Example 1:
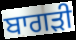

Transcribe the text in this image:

ਬਾਗੜੀ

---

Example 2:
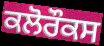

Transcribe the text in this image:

ਕਲੋਰੌਕਸ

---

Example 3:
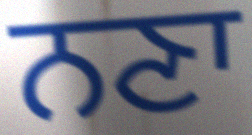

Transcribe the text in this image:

ਨਣਾ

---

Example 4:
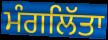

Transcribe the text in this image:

ਮੰਗਲਿੱਤਾ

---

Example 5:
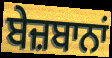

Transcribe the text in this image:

ਬੇਜ਼ਬਾਨਾਂ